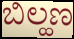
ಬಿಲ್ಹಣ